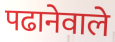
पढानेवाले